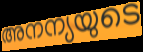
അനന്യയുടെ